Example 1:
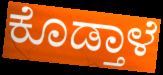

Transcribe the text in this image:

ಕೊಡ್ತಾಳೆ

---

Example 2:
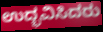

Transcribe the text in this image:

ಉದ್ಭವಿಸಿದರು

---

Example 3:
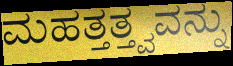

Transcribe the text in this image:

ಮಹತ್ತತ್ತ್ವವನ್ನು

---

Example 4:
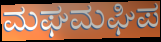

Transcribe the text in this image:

ಮಘಮಘಿಪ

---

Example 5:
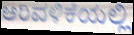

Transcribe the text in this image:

ಅರಿವಳಿಕೆಯಲ್ಲಿ